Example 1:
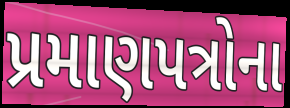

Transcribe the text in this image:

પ્રમાણપત્રોના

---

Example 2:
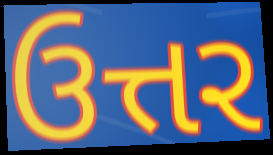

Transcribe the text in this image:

ઉત્તર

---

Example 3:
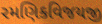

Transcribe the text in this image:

રમણિકવિજયજી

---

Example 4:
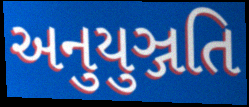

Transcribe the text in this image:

અનુયુઞ્જતિ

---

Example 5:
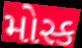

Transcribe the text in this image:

મોસ્ક